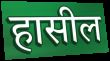
हासील